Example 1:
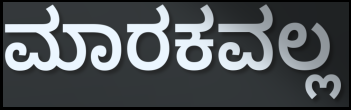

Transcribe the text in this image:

ಮಾರಕವಲ್ಲ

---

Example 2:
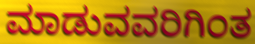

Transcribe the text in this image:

ಮಾಡುವವರಿಗಿಂತ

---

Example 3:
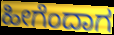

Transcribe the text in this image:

ಹೀಗೆಂದಾಗ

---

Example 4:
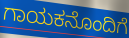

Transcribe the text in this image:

ಗಾಯಕನೊಂದಿಗೆ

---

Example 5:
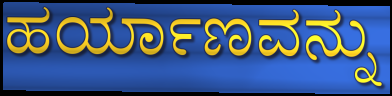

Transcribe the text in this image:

ಹರ್ಯಾಣವನ್ನು